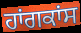
ਹਾਂਗਕਾਂਸ